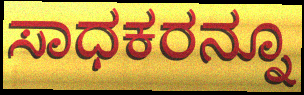
ಸಾಧಕರನ್ನೂ